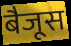
बैजूस